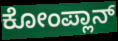
ಕೋಂಪ್ಲಾನ್